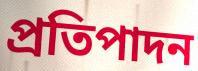
প্রতিপাদন